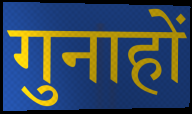
गुनाहों